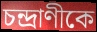
চন্দ্রাণীকে